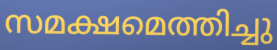
സമക്ഷമെത്തിച്ചു